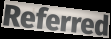
Referred